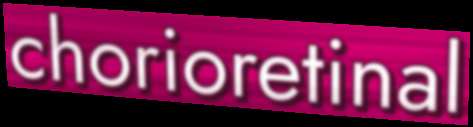
chorioretinal